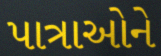
પાત્રાઓને